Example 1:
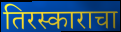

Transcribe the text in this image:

तिरस्काराचा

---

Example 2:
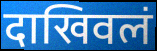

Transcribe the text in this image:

दाखिवलं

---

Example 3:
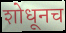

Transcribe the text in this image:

शोधूनच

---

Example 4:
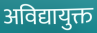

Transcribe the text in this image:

अविद्यायुक्त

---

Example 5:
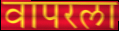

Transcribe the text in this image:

वापरला